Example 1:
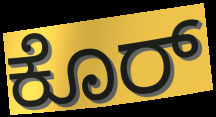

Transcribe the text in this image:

ಕೊರ್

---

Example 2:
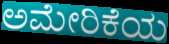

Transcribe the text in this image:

ಅಮೇರಿಕೆಯ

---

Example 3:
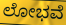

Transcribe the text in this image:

ಲೋಭವೆ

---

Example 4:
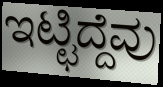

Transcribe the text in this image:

ಇಟ್ಟಿದ್ದೆವು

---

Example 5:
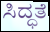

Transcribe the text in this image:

ಸಿದ್ಧತೆ